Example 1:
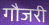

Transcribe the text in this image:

गौजरी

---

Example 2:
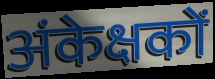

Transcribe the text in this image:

अंकेक्षकों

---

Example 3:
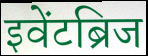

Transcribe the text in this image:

इवेंटब्रिज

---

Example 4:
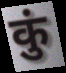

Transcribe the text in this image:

कुं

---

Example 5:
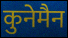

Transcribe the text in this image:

कुनेमैन